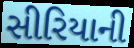
સીરિયાની